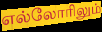
எல்லோரிலும்